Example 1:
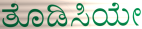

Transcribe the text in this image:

ತೊಡಿಸಿಯೇ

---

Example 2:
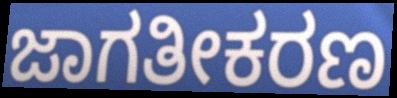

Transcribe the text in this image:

ಜಾಗತೀಕರಣ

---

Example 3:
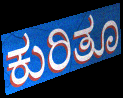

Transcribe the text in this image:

ಕುರಿತೂ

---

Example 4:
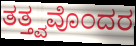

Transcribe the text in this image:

ತತ್ತ್ವವೊಂದರ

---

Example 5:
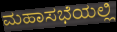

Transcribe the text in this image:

ಮಹಾಸಭೆಯಲ್ಲಿ